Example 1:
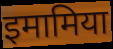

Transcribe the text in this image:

इमामिया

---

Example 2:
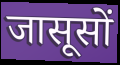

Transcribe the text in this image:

जासूसों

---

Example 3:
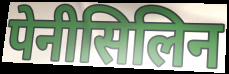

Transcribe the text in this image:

पेनीसिलिन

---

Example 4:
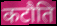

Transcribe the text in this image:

कटौति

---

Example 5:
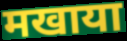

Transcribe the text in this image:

मखाया